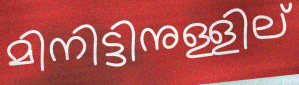
മിനിട്ടിനുള്ളില്